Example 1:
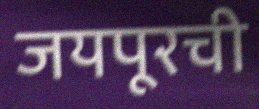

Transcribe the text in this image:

जयपूरची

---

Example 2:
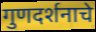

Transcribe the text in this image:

गुणदर्शनाचे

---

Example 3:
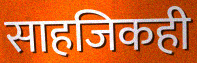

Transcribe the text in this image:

साहजिकही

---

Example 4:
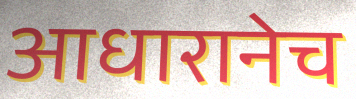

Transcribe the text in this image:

आधारानेच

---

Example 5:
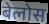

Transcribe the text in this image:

बेलोस